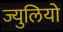
ज्युलियो